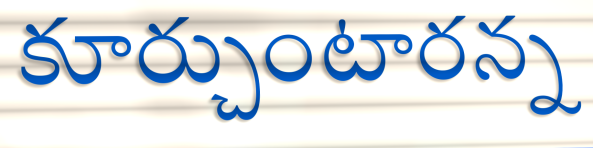
కూర్చుంటారన్న